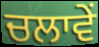
ਚਲਾਵੇਂ